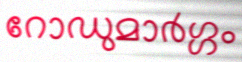
റോഡുമാർഗ്ഗം